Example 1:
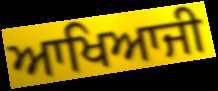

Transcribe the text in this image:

ਆਖਿਆਜੀ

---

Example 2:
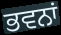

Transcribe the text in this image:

ਭਵਨਾਂ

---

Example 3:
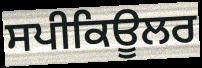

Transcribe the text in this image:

ਸਪੀਕਿਊਲਰ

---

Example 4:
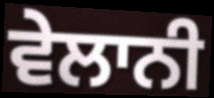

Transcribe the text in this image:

ਵੇਲਾਨੀ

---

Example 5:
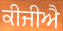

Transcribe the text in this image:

ਕੀਜੀਐ